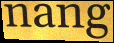
nang